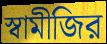
স্বামীজির